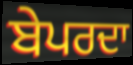
ਬੇਪਰਦਾ